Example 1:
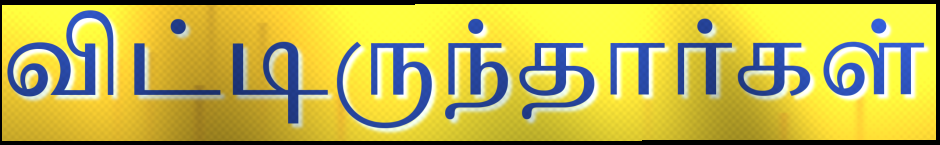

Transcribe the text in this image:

விட்டிருந்தார்கள்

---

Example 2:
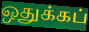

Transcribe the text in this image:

ஒதுக்கப்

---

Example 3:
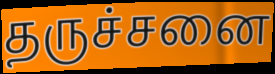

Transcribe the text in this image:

தருச்சனை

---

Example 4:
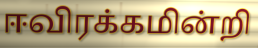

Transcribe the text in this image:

ஈவிரக்கமின்றி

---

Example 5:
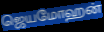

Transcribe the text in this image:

ஜெயமோஹன்